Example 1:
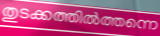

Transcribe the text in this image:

തുടക്കത്തിൽത്തന്നെ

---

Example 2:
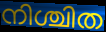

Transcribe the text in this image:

നിശ്ചിത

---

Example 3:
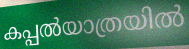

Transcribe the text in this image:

കപ്പൽയാത്രയിൽ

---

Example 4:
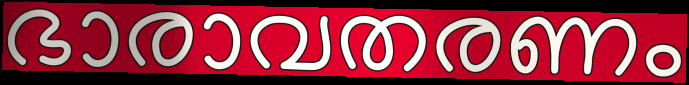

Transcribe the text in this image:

ഭാരാവതരണം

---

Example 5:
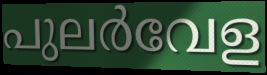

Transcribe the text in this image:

പുലർവേള